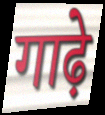
गाढ़े